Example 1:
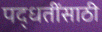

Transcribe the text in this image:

पद्धतींसाठी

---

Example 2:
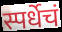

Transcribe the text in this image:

स्पर्धेचं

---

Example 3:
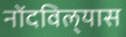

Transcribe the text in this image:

नोंदविल्यास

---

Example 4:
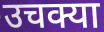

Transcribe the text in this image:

उचक्या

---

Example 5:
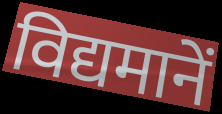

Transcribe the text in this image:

विद्यमानें